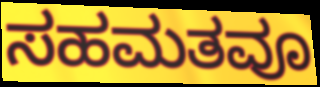
ಸಹಮತವೂ